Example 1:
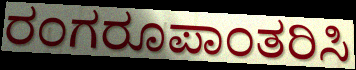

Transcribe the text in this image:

ರಂಗರೂಪಾಂತರಿಸಿ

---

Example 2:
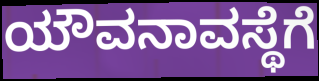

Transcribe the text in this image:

ಯೌವನಾವಸ್ಥೆಗೆ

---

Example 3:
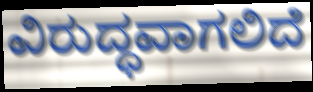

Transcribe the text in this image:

ವಿರುದ್ಧವಾಗಲಿದೆ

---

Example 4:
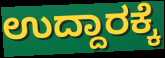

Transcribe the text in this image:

ಉದ್ದಾರಕ್ಕೆ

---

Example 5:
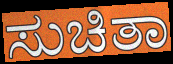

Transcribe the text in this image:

ಸುಚಿತಾ